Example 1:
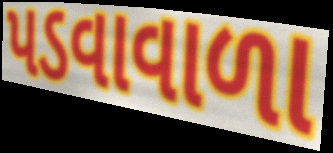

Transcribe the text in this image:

પડવાવાળા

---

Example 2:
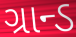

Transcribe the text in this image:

ગ્રાન્ડ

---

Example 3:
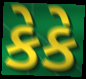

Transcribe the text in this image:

કેકે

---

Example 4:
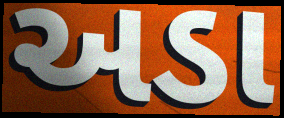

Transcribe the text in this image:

અડા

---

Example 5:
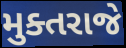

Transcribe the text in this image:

મુક્તરાજે